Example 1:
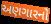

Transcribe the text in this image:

અણગારનો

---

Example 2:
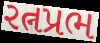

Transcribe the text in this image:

રત્નપ્રભ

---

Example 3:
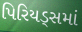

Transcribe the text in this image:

પિરિયડ્સમાં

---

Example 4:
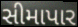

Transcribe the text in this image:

સીમાપાર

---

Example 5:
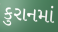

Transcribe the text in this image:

કુરાનમાં